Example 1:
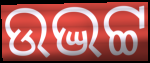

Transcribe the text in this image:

ଉଦ୍ଭଟ୍ଟ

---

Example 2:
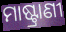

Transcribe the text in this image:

ମାଷ୍ଟ୍ରାଣୀ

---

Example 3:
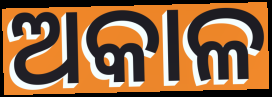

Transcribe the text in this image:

ଅକାଳ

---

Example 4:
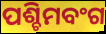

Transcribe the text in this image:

ପଶ୍ଚିମବଂଗ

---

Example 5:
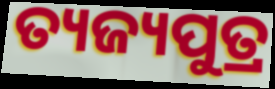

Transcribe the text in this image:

ତ୍ୟଜ୍ୟପୁତ୍ର